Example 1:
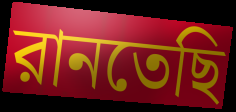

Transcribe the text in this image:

রানতেছি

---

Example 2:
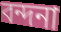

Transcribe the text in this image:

বন্দনা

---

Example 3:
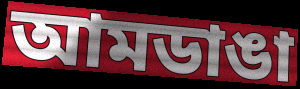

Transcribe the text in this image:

আমডাঙা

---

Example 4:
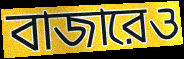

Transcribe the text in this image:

বাজারেও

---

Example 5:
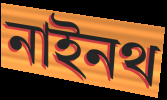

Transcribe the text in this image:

নাইনথ